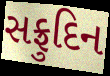
સફ્રુદિન